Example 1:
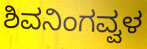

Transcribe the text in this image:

ಶಿವನಿಂಗವ್ವಳ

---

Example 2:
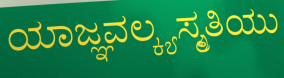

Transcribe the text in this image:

ಯಾಜ್ಞವಲ್ಕ್ಯಸ್ಮೃತಿಯು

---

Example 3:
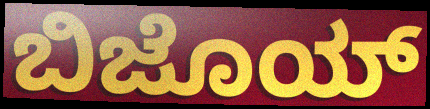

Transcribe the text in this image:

ಬಿಜೊಯ್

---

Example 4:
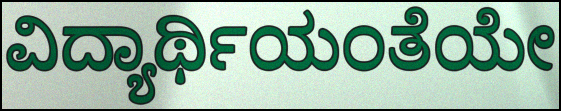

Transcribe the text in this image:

ವಿದ್ಯಾರ್ಥಿಯಂತೆಯೇ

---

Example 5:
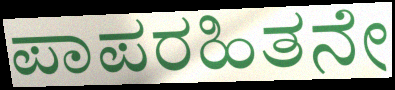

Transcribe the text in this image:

ಪಾಪರಹಿತನೇ